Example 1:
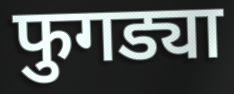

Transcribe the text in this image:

फुगड्या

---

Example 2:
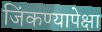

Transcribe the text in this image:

जिंकण्यापेक्षा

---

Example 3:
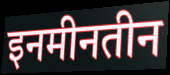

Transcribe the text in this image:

इनमीनतीन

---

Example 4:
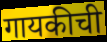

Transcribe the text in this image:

गायकीची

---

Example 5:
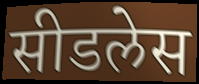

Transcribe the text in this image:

सीडलेस